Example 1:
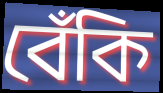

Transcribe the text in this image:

বেঁকি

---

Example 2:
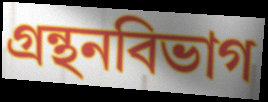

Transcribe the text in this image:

গ্রন্থনবিভাগ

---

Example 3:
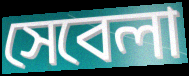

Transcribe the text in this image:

সেবেলা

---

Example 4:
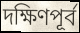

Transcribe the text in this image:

দক্ষিণপূর্ব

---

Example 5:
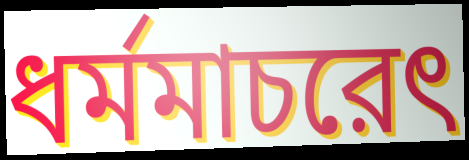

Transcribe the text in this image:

ধর্মমাচরেৎ